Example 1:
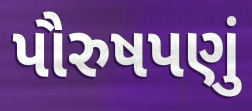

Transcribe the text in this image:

પૌરુષપણું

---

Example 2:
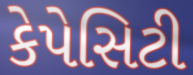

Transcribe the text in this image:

કેપેસિટી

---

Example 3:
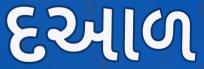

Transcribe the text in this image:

દઆળ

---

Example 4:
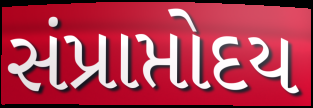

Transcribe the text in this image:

સંપ્રાપ્તોદય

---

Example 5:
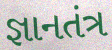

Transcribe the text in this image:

જ્ઞાનતંત્ર